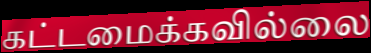
கட்டமைக்கவில்லை